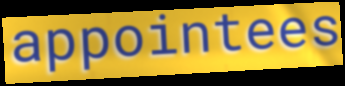
appointees